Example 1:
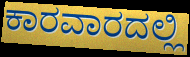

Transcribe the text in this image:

ಕಾರವಾರದಲ್ಲಿ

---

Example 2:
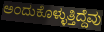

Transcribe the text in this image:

ಅಂದುಕೊಳ್ಳುತ್ತಿದ್ದೆವು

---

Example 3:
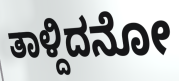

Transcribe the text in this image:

ತಾಳ್ದಿದನೋ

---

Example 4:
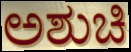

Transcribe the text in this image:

ಅಶುಚಿ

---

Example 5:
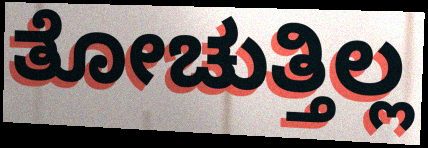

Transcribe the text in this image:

ತೋಚುತ್ತಿಲ್ಲ